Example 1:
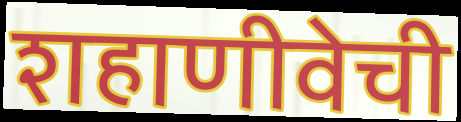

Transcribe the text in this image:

शहाणीवेची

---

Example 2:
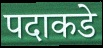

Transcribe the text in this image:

पदाकडे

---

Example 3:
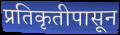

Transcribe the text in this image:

प्रतिकृतीपासून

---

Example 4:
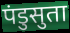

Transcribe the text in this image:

पंडुसुता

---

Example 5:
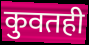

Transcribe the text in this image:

कुवतही